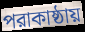
পরাকাষ্ঠায়